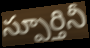
స్పూర్తినీ